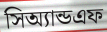
সিঅ্যান্ডএফ